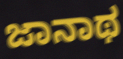
ಜಾನಾಥ